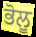
ਭੋਲੂ